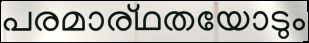
പരമാര്ഥതയോടും